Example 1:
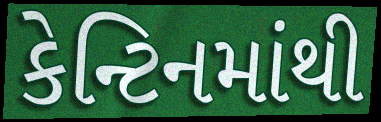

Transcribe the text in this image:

કેન્ટિનમાંથી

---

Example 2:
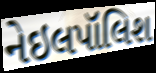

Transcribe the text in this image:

નેઇલપૉલિશ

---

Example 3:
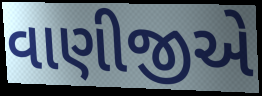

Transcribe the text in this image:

વાણીજીએ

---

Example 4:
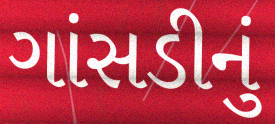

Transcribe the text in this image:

ગાંસડીનું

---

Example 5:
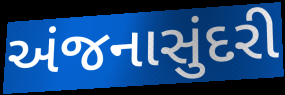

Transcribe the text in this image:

અંજનાસુંદરી